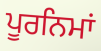
ਪੂਰਨਿਮਾਂ